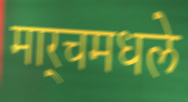
मार्चमधले